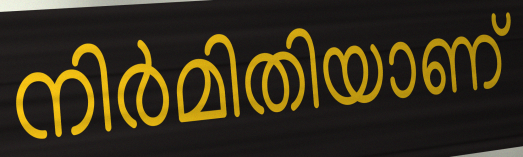
നിർമിതിയാണ്